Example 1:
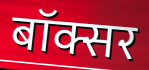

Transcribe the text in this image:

बॉक्सर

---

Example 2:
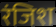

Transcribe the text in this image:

रंजिश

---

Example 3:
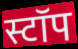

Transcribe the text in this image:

स्टॉप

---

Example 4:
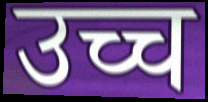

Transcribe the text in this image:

उच्च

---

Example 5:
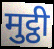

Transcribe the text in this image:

मुट्ठी